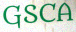
GSCA